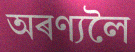
অৰণ্যলৈ